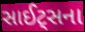
સાઈટ્સના